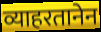
व्याहरतानेन